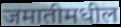
जमातीमधील